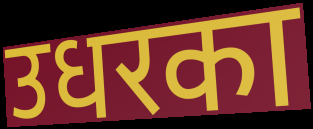
उधरका